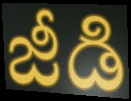
జీడి